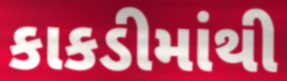
કાકડીમાંથી